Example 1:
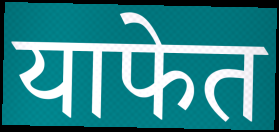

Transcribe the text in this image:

याफेत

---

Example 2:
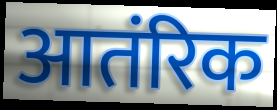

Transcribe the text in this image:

आतंरिक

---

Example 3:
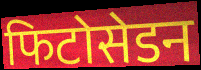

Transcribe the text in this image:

फिटोसेडन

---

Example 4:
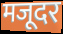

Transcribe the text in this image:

मजूदर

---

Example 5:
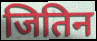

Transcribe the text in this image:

जितिन